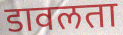
डावलता